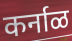
कर्नाळ